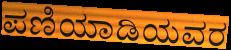
ಪಣಿಯಾಡಿಯವರ